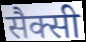
सैक्सी